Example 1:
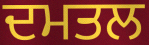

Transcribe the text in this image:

ਦਮਤਲ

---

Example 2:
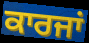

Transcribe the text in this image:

ਕਾਰਜਾਂ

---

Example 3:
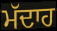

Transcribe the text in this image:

ਮੱਦਾਹ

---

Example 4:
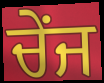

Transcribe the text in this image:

ਚੇਂਜ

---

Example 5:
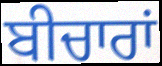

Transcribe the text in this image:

ਬੀਚਾਰਾਂ